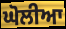
ਘੋਲੀਆ